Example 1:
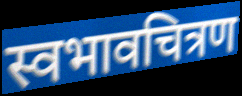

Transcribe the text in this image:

स्वभावचित्रण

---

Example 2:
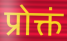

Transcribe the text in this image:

प्रोक्तं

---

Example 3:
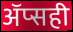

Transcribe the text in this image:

ॲप्सही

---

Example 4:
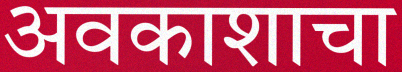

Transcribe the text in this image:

अवकाशाचा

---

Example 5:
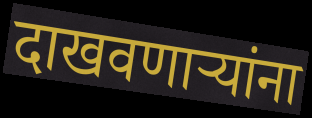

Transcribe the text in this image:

दाखवणाऱ्यांना